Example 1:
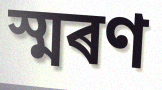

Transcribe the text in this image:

স্মৰণ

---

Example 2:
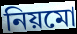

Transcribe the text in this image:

নিয়মো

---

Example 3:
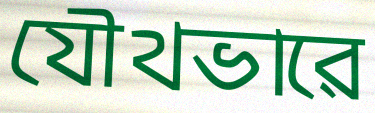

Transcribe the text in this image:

যৌথভাৱে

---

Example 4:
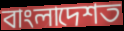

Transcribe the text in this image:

বাংলাদেশত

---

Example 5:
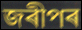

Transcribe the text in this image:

জৰীপৰ